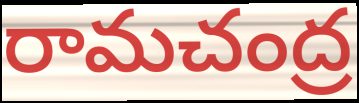
రామచంద్ర